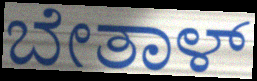
ಬೇತಾಳ್